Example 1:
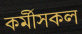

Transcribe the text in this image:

কৰ্মীসকল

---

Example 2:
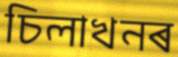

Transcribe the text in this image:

চিলাখনৰ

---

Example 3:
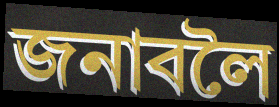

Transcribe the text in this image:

জনাবলৈ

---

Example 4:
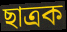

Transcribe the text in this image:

ছাত্ৰক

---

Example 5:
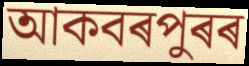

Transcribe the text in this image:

আকবৰপুৰৰ